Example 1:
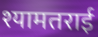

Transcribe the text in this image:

श्यामतराई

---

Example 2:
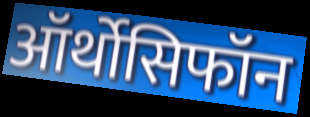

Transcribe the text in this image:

ऑर्थोसिफॉन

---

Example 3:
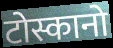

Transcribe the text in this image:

टोस्कानो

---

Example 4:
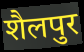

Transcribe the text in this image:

शैलपुर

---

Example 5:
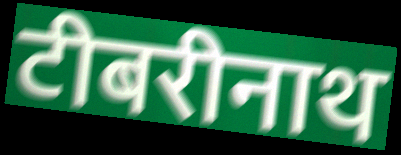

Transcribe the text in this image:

टीबरीनाथ